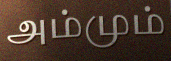
அம்மும்